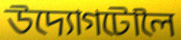
উদ্যোগটোলৈ